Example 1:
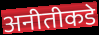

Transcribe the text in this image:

अनीतीकडे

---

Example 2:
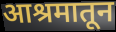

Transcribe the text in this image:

आश्रमातून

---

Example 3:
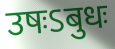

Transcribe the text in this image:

उषःऽबुधः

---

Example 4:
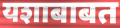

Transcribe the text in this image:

यशाबाबत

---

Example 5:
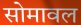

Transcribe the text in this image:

सोमावल